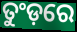
ତୁଂଡ଼ରେ